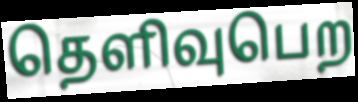
தெளிவுபெற